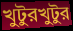
খুটুরখুটুর